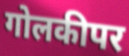
गोलकीपर